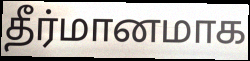
தீர்மானமாக